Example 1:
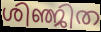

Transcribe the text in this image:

ശിഞ്ജിത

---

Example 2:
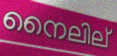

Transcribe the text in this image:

നൈലില്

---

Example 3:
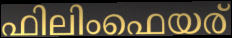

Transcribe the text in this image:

ഫിലിംഫെയര്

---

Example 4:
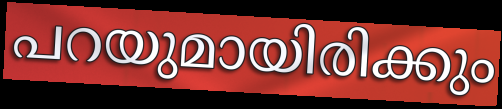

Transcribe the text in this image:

പറയുമായിരിക്കും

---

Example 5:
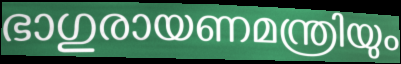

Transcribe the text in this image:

ഭാഗുരായണമന്ത്രിയും